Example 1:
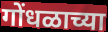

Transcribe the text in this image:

गोंधळाच्या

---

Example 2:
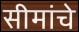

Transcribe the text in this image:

सीमांचे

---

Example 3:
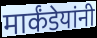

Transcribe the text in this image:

मार्कंडेयांनी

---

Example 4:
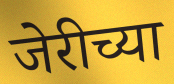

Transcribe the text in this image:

जेरीच्या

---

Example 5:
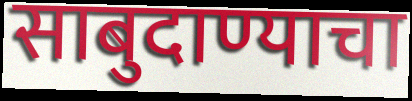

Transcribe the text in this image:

साबुदाण्याचा